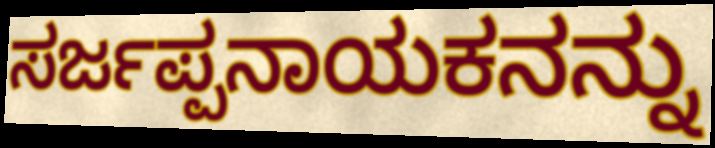
ಸರ್ಜಪ್ಪನಾಯಕನನ್ನು